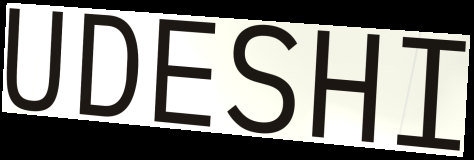
UDESHI